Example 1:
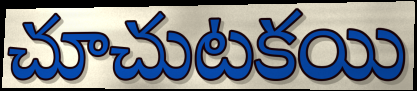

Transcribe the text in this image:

చూచుటకయి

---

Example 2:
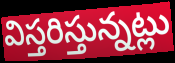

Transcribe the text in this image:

విస్తరిస్తున్నట్లు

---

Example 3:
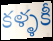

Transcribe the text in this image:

కళ్ళకీ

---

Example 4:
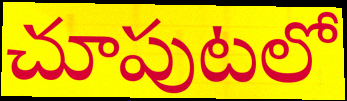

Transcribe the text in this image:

చూపుటలో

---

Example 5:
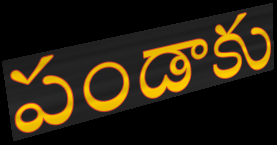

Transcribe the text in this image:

పండాకు